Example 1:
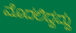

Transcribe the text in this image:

ಮೊದಲಿದ್ದದ್ದು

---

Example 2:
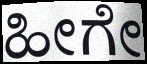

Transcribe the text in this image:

ಹೀಗೇ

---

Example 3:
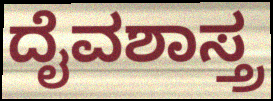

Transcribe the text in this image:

ದೈವಶಾಸ್ತ್ರ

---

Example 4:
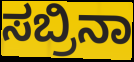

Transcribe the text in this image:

ಸಬ್ರಿನಾ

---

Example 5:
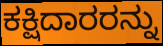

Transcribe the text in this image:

ಕಕ್ಷಿದಾರರನ್ನು